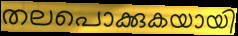
തലപൊക്കുകയായി